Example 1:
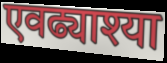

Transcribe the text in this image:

एवढ्याश्या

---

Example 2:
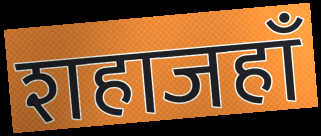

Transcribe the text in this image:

शहाजहाँ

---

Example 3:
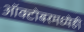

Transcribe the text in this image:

ऑक्टोबरमध्येही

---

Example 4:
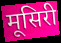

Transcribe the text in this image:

मूसिरी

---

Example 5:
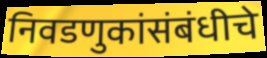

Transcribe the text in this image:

निवडणुकांसंबंधीचे